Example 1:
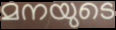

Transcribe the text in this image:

മനയുടെ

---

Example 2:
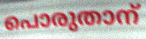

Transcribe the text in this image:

പൊരുതാന്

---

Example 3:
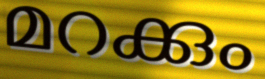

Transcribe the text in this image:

മറക്കും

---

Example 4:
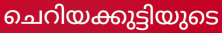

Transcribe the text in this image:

ചെറിയക്കുട്ടിയുടെ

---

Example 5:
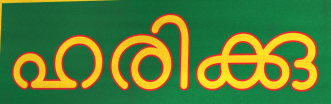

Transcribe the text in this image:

ഹരിക്കു